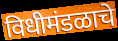
विधीमंडळाचे